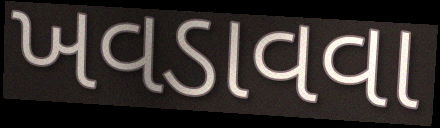
ખવડાવવા